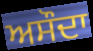
ਅਸੌਦਾ